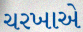
ચરખાએ